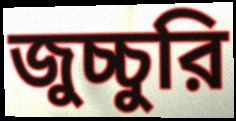
জুচ্চুরি